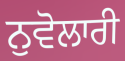
ਨੁਵੋਲਾਰੀ